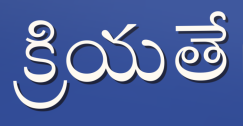
క్రియతే